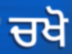
ਚਖੋ